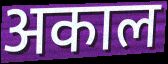
अकाल